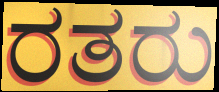
ರತರು